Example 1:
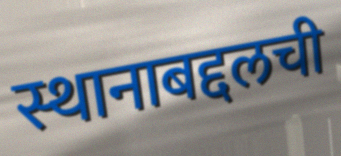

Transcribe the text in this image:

स्थानाबद्दलची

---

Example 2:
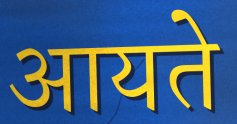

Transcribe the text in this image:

आयते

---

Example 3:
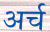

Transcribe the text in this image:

अर्च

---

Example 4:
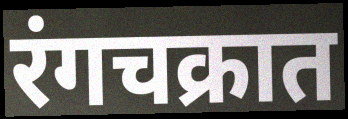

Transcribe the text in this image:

रंगचक्रात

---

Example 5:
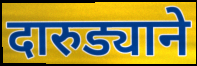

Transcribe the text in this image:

दारुड्याने